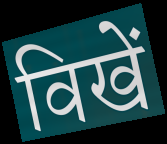
विखें